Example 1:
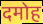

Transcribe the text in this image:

दमोह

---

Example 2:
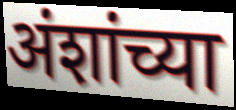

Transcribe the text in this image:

अंशांच्या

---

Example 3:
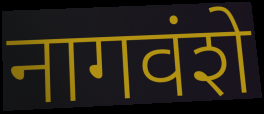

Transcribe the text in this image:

नागवंशे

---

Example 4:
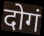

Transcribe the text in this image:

दोगं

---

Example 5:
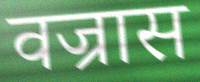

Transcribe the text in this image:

वज्रास